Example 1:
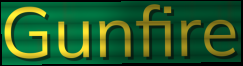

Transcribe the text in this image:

Gunfire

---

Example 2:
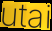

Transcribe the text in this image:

utai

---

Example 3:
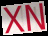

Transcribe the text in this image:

XN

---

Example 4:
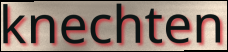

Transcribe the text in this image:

knechten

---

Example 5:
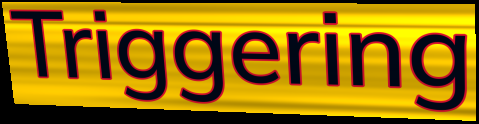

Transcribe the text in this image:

Triggering